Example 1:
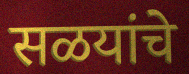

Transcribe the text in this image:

सळयांचे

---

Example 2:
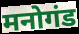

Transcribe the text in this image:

मनोगंड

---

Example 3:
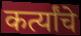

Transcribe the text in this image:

कर्त्यांचे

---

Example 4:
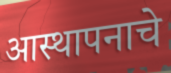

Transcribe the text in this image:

आस्थापनाचे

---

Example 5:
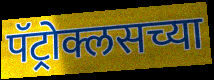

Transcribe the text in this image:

पॅट्रोक्लसच्या